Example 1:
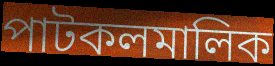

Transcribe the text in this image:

পাটকলমালিক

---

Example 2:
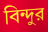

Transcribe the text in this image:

বিন্দুর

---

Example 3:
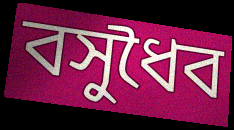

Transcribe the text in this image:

বসুধৈব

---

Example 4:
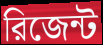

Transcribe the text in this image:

রিজেন্ট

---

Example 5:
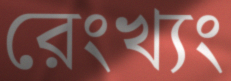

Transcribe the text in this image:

রেংখ্যং